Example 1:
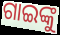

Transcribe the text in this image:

ଗାଇଙ୍କୁ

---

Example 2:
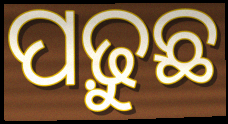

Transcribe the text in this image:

ପଢ଼ୁଛ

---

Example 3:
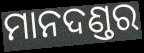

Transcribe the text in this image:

ମାନଦଣ୍ଡର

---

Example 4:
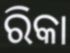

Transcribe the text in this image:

ରିକା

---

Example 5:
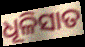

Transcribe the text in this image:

ଧୂଳିସାତ